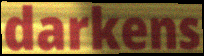
darkens